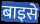
बाइसे